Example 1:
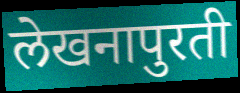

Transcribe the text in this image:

लेखनापुरती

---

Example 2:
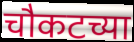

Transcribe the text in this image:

चौकटच्या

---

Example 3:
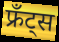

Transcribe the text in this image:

फ्रँट्स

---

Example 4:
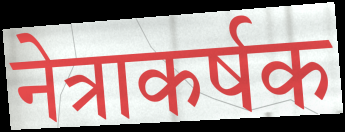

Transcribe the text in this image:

नेत्राकर्षक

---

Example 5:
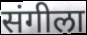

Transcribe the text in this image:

संगीला